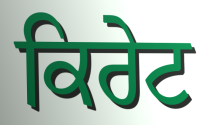
ਕਿਰੇਟ